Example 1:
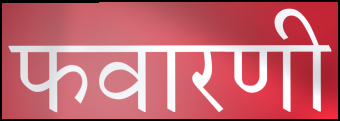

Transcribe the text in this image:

फवारणी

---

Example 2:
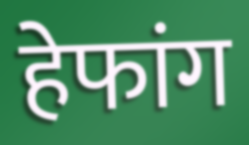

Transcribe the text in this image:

हेफांग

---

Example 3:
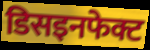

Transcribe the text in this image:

डिसइनफेक्ट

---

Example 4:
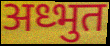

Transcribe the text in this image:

अध्भुत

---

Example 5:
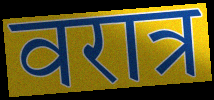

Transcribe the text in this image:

वरात्र